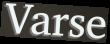
Varse